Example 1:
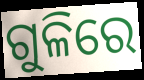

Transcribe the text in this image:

ଗୁଳିରେ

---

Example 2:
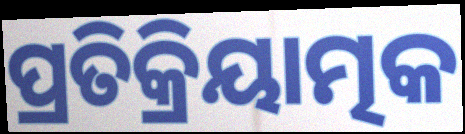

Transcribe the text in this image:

ପ୍ରତିକ୍ରିୟାତ୍ମକ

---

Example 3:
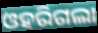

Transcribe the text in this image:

ଓହରିଗଲା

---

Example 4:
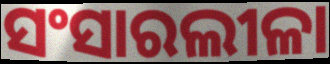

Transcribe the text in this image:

ସଂସାରଲୀଳା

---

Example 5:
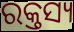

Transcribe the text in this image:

ରକ୍ତସ୍ୟ